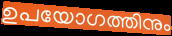
ഉപയോഗത്തിനും